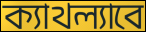
ক্যাথল্যাবে